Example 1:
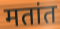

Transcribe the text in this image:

मतांत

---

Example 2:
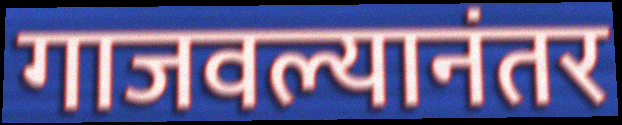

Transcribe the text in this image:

गाजवल्यानंतर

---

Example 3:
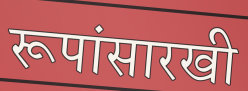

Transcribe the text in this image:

रूपांसारखी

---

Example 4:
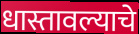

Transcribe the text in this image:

धास्तावल्याचे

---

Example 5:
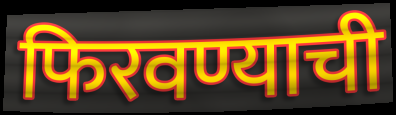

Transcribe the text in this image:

फिरवण्याची